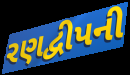
રણદ્વીપની